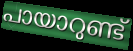
പായാറുണ്ട്